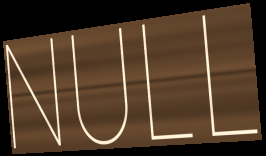
NULL